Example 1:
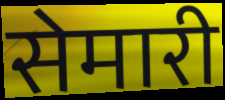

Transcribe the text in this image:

सेमारी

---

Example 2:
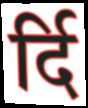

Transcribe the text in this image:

र्दि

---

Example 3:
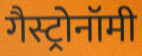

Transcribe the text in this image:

गैस्ट्रोनॉमी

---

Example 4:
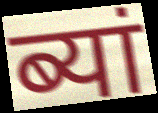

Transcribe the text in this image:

ब्यां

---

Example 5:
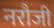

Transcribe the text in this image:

नरौजी